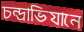
চন্দ্রাভিযানে